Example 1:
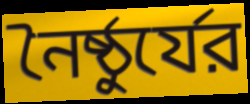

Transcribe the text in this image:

নৈষ্ঠুর্যের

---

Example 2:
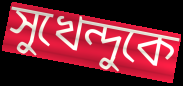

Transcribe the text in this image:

সুখেন্দুকে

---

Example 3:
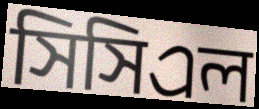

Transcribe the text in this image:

সিসিএল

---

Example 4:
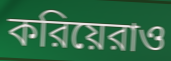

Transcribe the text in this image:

করিয়েরাও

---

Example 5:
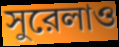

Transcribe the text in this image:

সুরেলাও